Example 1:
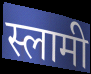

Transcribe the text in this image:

स्लामी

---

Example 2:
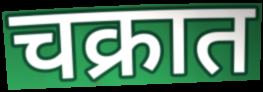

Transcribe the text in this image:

चक्रात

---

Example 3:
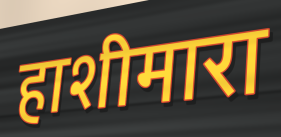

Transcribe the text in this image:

हाशीमारा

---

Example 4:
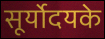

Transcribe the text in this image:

सूर्योदयके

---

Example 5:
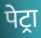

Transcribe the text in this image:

पेट्रा